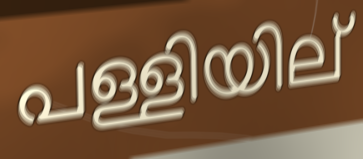
പള്ളിയില്